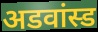
अडवांस्ड